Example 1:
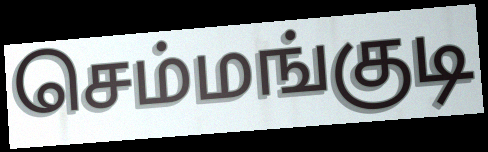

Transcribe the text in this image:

செம்மங்குடி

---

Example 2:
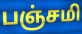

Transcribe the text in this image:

பஞ்சமி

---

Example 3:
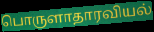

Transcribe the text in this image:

பொருளாதாரவியல்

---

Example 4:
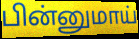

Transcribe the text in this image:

பின்னுமாய்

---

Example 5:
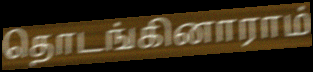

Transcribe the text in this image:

தொடங்கினாராம்